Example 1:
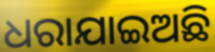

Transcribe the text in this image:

ଧରାଯାଇଅଛି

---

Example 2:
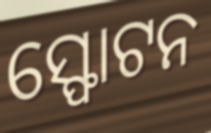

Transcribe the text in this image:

ସ୍ଫୋଟନ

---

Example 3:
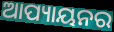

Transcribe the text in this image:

ଆପ୍ୟାୟନର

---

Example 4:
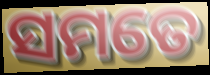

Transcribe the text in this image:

ସମତେ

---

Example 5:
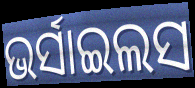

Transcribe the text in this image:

ଭର୍ସାଇଲସ